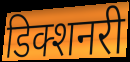
डिक्शनरी